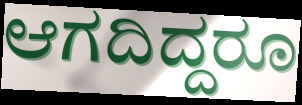
ಆಗದಿದ್ದರೂ